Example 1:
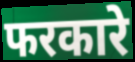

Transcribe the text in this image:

फरकारे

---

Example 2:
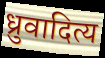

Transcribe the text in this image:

ध्रुवादित्य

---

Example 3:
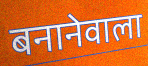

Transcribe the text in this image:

बनानेवाला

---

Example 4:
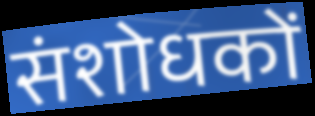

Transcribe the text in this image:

संशोधकों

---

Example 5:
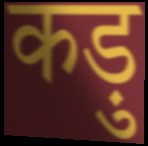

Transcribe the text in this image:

कड़ु